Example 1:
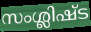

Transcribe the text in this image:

സംശ്ലിഷ്ട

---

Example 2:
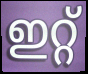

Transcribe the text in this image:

ഇറ്റ്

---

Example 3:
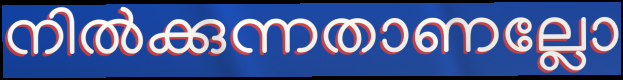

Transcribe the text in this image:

നിൽക്കുന്നതാണല്ലോ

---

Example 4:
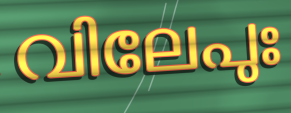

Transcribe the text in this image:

വിലേപുഃ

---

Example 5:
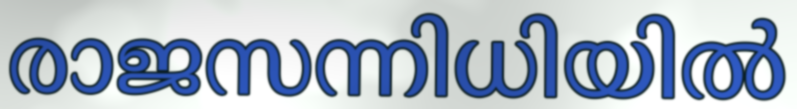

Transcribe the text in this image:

രാജസന്നിധിയിൽ